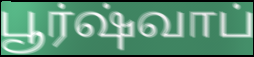
பூர்ஷ்வாப்